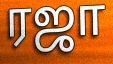
ரஜா